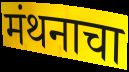
मंथनाचा